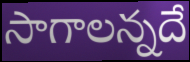
సాగాలన్నదే